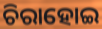
ଚିରାହୋଇ